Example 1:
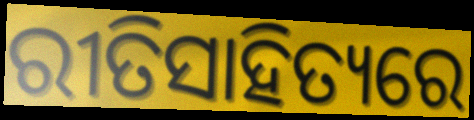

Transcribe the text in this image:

ରୀତିସାହିତ୍ୟରେ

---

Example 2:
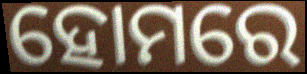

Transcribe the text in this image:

ହୋମରେ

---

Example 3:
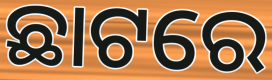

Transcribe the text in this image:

ଛାଟରେ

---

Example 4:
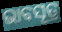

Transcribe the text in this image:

ଭାବସୂତ୍ର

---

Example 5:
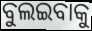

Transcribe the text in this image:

ବୁଲଇବାକୁ